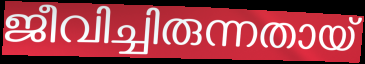
ജീവിച്ചിരുന്നതായ്